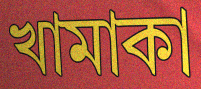
খামাকা